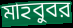
মাহবুবর